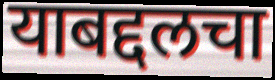
याबद्दलचा